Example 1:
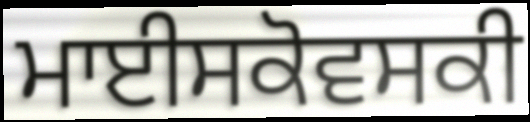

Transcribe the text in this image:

ਮਾਈਸਕੋਵਸਕੀ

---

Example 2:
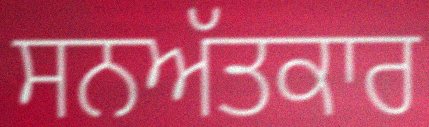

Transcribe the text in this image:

ਸਨਅੱਤਕਾਰ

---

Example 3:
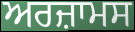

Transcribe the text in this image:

ਅਰਜ਼ਾਮਸ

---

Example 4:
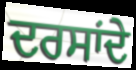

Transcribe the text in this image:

ਦਰਸਾਂਦੇ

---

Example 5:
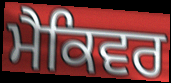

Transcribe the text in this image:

ਮੈਕਿਵਰ